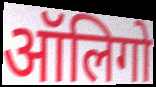
ऑलिगो